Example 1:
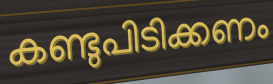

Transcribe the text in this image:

കണ്ടുപിടിക്കണം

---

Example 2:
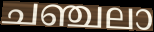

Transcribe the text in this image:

ചഞ്ചലാ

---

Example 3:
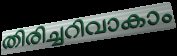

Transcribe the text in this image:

തിരിച്ചറിവാകാം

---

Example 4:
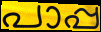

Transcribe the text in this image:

പാപ്പ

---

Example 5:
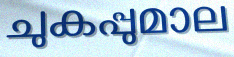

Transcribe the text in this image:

ചുകപ്പുമാല